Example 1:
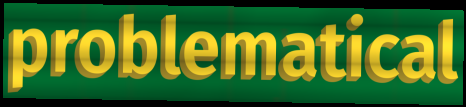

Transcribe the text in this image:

problematical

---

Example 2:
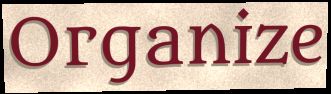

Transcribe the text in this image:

Organize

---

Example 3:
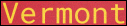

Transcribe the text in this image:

Vermont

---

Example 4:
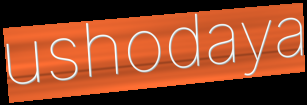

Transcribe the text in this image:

ushodaya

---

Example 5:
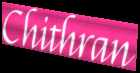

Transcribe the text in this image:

Chithran